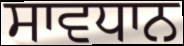
ਸਾਵਧਾਨ